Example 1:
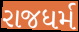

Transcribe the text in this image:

રાજધર્મ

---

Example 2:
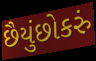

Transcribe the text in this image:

છૈયુંછોકરું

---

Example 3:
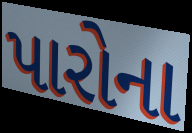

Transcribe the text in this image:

પારોના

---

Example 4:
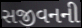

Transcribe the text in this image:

સજીવનની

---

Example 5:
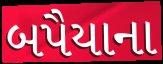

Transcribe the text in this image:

બપૈયાના